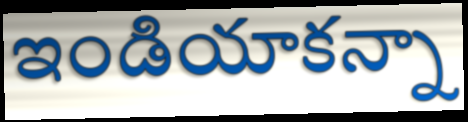
ఇండియాకన్నా